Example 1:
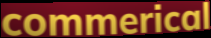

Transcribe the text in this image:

commerical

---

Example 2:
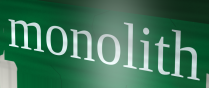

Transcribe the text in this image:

monolith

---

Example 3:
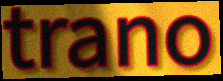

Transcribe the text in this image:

trano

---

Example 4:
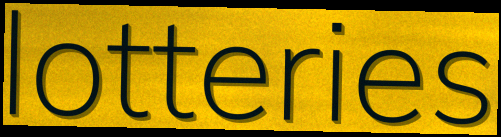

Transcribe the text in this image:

lotteries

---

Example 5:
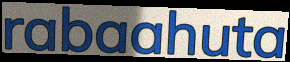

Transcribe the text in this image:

rabaahuta